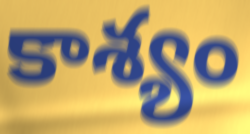
కాశ్యం